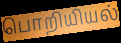
பொறியியல்